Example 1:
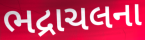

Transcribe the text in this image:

ભદ્રાચલના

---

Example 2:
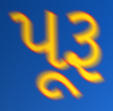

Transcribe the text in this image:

પૂરૂ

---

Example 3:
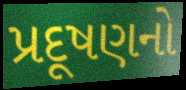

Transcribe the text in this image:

પ્રદૂષણનો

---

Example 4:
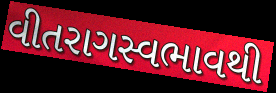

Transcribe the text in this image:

વીતરાગસ્વભાવથી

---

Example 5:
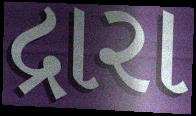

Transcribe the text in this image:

દ્રારા